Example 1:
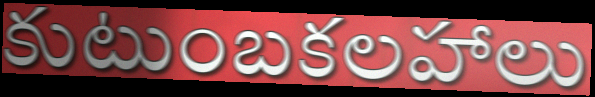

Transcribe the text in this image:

కుటుంబకలహాలు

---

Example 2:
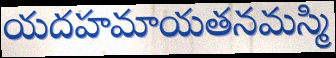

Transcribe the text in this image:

యదహమాయతనమస్మి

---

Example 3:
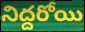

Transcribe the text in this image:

నిద్దరోయి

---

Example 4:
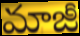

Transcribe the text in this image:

మాజీ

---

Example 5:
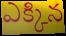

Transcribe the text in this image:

ఎక్కిన